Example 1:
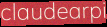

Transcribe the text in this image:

claudearpi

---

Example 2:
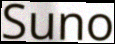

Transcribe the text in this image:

Suno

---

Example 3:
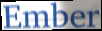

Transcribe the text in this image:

Ember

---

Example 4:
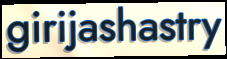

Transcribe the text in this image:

girijashastry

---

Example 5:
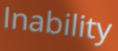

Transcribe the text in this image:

Inability